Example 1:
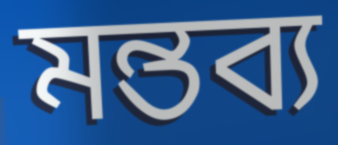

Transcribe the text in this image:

মন্তব্য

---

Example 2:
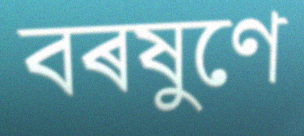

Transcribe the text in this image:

বৰষুণে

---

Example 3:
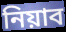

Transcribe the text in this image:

নিয়াব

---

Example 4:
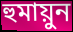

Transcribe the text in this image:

হুমায়ুন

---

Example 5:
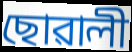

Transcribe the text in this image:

ছোৱালী